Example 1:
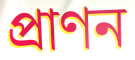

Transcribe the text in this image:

প্রাণন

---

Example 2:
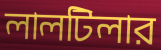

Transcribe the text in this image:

লালটিলার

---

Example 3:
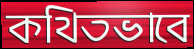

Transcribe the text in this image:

কথিতভাবে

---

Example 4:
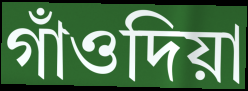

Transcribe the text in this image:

গাঁওদিয়া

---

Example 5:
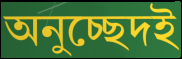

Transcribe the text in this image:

অনুচ্ছেদই